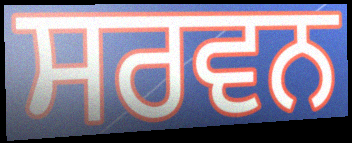
ਸਰਵਨ